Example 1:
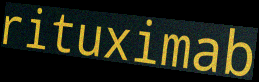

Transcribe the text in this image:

rituximab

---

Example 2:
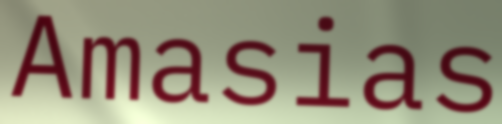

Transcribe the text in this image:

Amasias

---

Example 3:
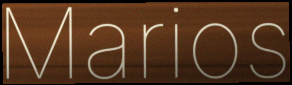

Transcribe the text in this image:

Marios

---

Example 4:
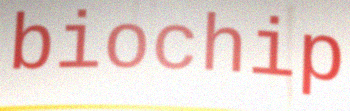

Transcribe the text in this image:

biochip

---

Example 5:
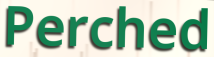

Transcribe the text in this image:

Perched